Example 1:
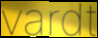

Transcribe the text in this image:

vardt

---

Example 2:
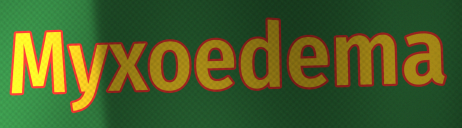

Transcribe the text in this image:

Myxoedema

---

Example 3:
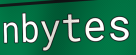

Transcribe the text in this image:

nbytes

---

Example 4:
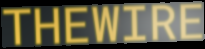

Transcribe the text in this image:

THEWIRE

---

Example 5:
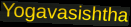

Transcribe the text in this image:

Yogavasishtha